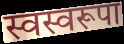
स्वस्वरूपा